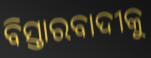
ବିସ୍ତାରବାଦୀକୁ